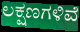
ಲಕ್ಷಣಗಳಿವೆ